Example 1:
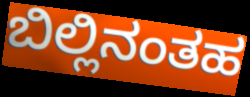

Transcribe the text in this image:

ಬಿಲ್ಲಿನಂತಹ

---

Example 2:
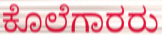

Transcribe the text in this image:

ಕೊಲೆಗಾರರು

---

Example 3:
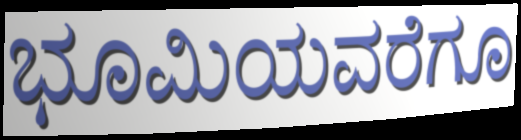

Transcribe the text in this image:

ಭೂಮಿಯವರೆಗೂ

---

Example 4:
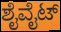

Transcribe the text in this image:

ಶೈವೈಟ್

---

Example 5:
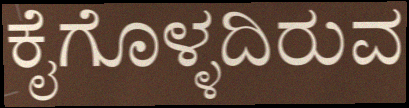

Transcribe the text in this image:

ಕೈಗೊಳ್ಳದಿರುವ